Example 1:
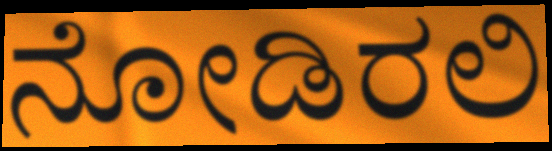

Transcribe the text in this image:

ನೋಡಿರಲಿ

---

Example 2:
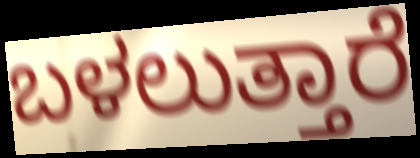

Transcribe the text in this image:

ಬಳಲುತ್ತಾರೆ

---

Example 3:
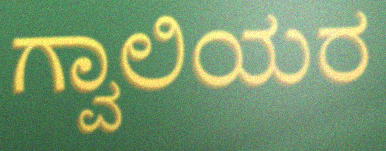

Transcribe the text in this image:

ಗ್ವಾಲಿಯರ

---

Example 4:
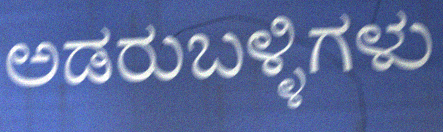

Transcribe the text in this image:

ಅಡರುಬಳ್ಳಿಗಳು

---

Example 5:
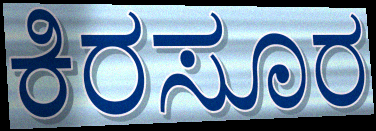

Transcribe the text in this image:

ಕಿರಸೂರ